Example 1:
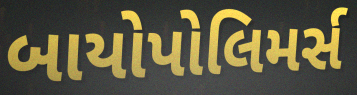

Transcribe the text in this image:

બાયોપોલિમર્સ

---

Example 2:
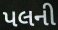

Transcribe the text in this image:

પલની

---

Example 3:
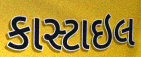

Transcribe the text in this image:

કાસ્ટાઇલ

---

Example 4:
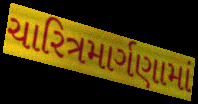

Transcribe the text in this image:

ચારિત્રમાર્ગણામાં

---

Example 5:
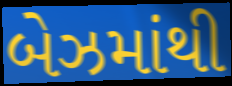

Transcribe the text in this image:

બેઝમાંથી